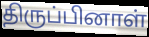
திருப்பினாள்